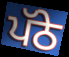
ਪੱਠੇ